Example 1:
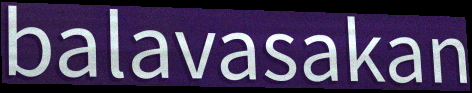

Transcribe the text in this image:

balavasakan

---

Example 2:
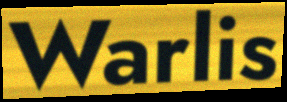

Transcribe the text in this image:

Warlis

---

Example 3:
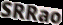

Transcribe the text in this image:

SRRao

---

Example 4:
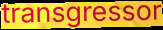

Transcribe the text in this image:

transgressor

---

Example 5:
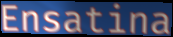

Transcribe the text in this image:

Ensatina